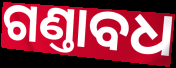
ଗଣ୍ତାବଧ